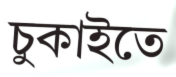
চুকাইতে